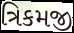
ત્રિકમજી